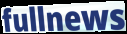
fullnews